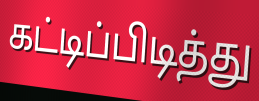
கட்டிப்பிடித்து